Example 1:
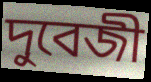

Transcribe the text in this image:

দুবেজী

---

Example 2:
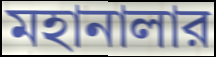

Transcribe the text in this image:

মহানালার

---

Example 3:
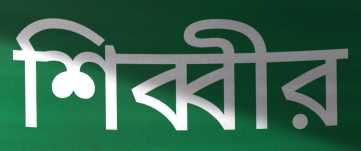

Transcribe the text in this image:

শিব্বীর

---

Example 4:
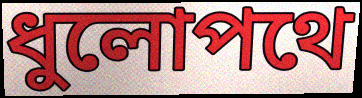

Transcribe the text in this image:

ধুলোপথে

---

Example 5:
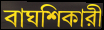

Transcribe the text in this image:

বাঘশিকারী